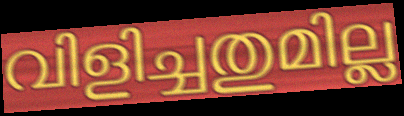
വിളിച്ചതുമില്ല